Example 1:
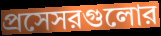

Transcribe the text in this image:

প্রসেসরগুলোর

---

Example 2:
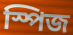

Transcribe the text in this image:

স্পিজ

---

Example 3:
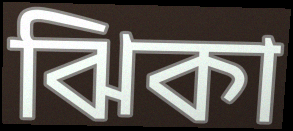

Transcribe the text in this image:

ঝিকা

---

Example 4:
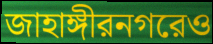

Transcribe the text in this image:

জাহাঙ্গীরনগরেও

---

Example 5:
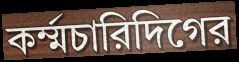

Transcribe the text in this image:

কর্ম্মচারিদিগের